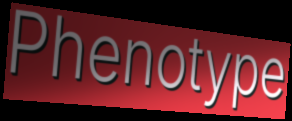
Phenotype